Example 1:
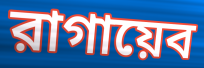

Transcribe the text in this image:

রাগায়েব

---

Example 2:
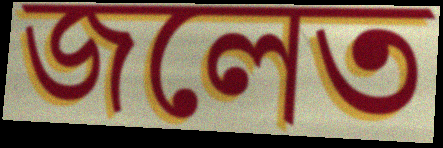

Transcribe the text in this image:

জলেত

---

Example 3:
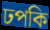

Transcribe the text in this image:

ঢপকি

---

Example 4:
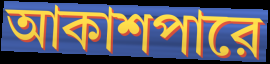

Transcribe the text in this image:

আকাশপারে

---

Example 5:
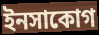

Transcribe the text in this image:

ইনসাকোগ